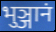
भुञ्जानं